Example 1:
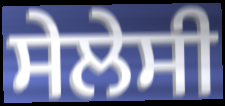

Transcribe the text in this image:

ਸੇਲੇਸੀ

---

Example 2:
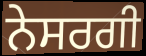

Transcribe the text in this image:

ਨੇਸਰਗੀ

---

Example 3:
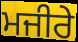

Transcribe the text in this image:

ਮਜੀਰੇ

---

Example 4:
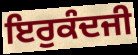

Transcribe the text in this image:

ਇਰੁਕੰਦਜੀ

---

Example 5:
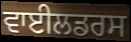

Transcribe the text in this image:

ਵਾਈਲਡਰਸ